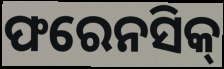
ଫରେନସିକ୍